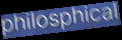
philosphical